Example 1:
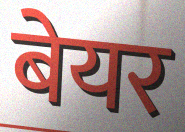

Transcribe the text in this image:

बेयर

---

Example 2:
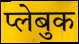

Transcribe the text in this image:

प्लेबुक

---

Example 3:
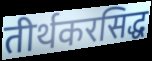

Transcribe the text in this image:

तीर्थकरसिद्ध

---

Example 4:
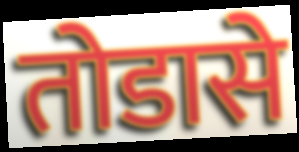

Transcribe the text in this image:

तोडासे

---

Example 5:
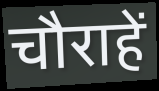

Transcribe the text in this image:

चौराहें